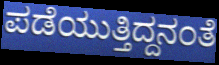
ಪಡೆಯುತ್ತಿದ್ದನಂತೆ